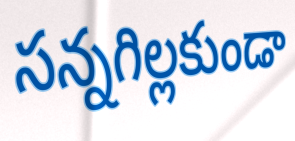
సన్నగిల్లకుండా